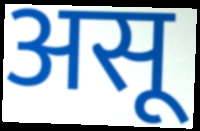
असू